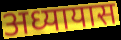
अध्यायास